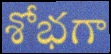
శోభగా